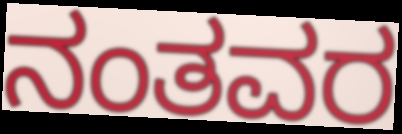
ನಂತವರ